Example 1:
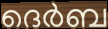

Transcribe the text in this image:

ദെർബ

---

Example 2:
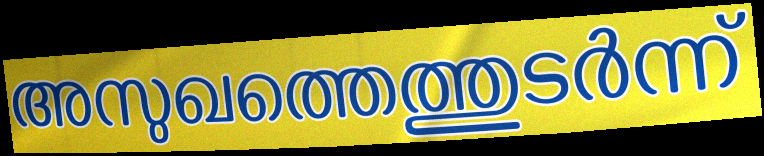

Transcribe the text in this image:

അസുഖത്തെത്തുടർന്ന്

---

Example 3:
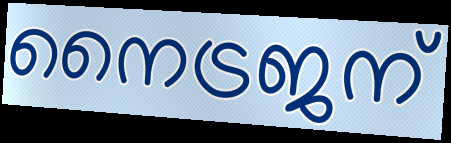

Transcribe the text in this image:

നൈട്രജന്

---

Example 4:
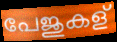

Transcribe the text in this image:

പേജുകള്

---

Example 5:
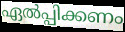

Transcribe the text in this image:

ഏൽപ്പിക്കണം